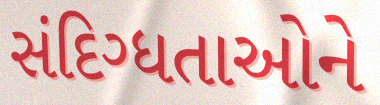
સંદિગ્ધતાઓને